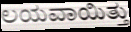
ಲಯವಾಯಿತ್ತು